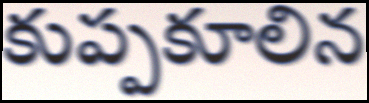
కుప్పకూలిన